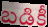
బడికీ